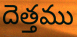
దెత్తము